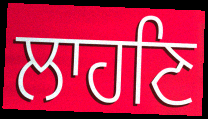
ਲਾਹਣਿ